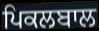
ਪਿਕਲਬਾਲ